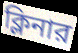
ক্লিনার